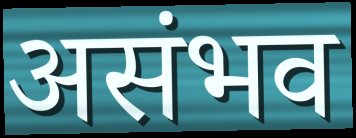
असंभव